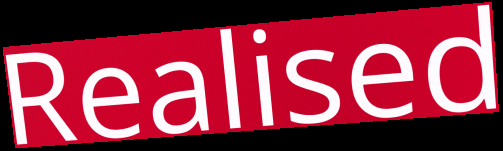
Realised